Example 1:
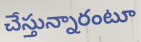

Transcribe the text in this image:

చేస్తున్నారంటూ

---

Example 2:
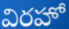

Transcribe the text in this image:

విరహో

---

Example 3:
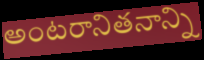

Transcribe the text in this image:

అంటరానితనాన్ని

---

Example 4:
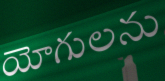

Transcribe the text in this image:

యోగులను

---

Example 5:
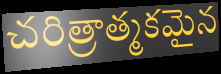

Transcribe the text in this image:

చరిత్రాత్మకమైన